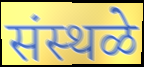
संस्थळे